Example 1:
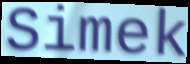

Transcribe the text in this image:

Simek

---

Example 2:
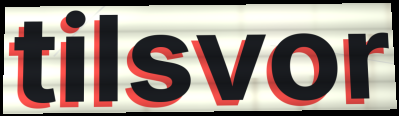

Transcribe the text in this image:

tilsvor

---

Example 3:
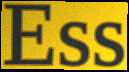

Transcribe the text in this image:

Ess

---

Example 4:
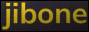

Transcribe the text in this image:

jibone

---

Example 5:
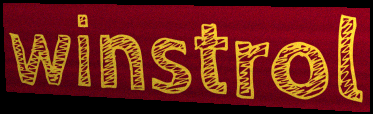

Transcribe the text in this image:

winstrol